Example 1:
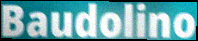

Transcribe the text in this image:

Baudolino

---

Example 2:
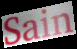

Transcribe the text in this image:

Sain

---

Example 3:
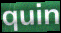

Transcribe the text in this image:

quin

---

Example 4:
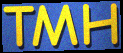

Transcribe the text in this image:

TMH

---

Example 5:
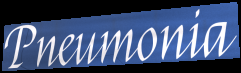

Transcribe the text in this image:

Pneumonia